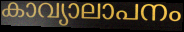
കാവ്യാലാപനം